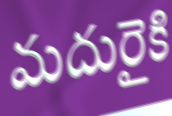
మదురైకి